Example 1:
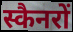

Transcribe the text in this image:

स्कैनरों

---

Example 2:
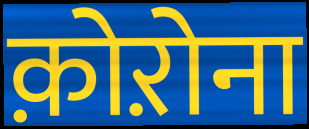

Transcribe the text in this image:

क़ोऱोना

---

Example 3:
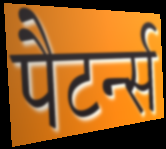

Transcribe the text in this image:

पैटर्न्स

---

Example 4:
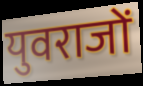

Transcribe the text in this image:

युवराजों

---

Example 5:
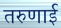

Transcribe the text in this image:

तरुणाई